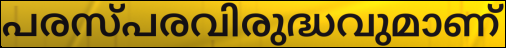
പരസ്പരവിരുദ്ധവുമാണ്